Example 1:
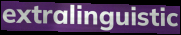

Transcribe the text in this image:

extralinguistic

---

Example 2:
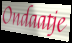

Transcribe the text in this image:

Ondaatje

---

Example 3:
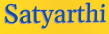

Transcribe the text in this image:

Satyarthi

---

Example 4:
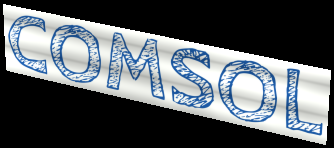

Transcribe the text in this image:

COMSOL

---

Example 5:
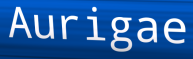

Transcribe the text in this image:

Aurigae